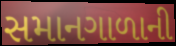
સમાનગાળાની